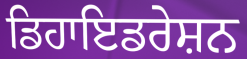
ਡਿਹਾਇਡਰੇਸ਼ਨ